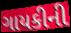
ગાયકીની